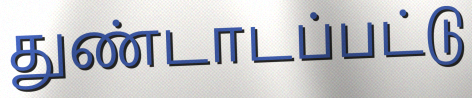
துண்டாடப்பட்டு